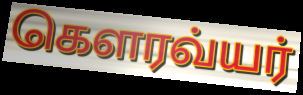
கௌரவ்யர்